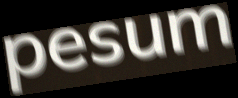
pesum